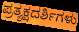
ಪ್ರತ್ಯಕ್ಷದರ್ಶಿಗಳು